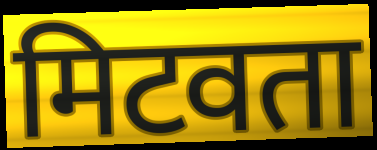
मिटवता